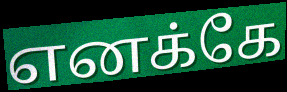
எனக்கே